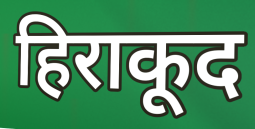
हिराकूद